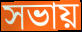
সভায়